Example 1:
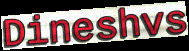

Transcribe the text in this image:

Dineshvs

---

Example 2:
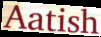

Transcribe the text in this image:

Aatish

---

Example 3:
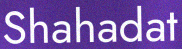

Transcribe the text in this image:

Shahadat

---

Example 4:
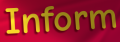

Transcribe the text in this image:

Inform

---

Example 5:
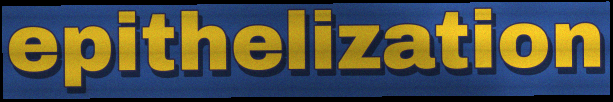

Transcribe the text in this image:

epithelization